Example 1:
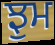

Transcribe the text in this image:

ਝੁਮ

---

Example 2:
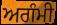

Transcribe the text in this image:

ਅਗੰਮੀ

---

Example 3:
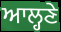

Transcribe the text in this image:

ਆਲ੍ਹਣੇ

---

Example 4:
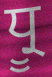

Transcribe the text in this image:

ਧ੍ਰੂ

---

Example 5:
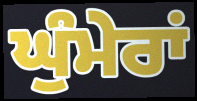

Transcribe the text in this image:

ਘੁੰਮੇਰਾਂ